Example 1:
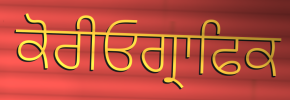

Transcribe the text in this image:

ਕੋਰੀਓਗ੍ਰਾਫਿਕ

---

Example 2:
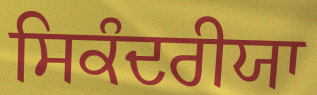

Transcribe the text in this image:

ਸਿਕੰਦਰੀਯਾ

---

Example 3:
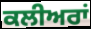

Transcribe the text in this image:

ਕਲੀਅਰਾਂ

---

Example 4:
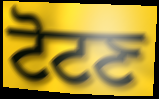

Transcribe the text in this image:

ਟੋਟਣ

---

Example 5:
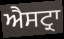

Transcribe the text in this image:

ਐਸਟ੍ਰਾ